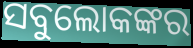
ସବୁଲୋକଙ୍କର